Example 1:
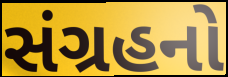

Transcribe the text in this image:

સંગ્રહનો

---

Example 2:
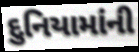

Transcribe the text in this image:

દુનિયામાંની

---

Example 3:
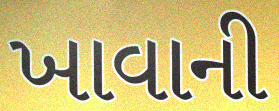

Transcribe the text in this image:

ખાવાની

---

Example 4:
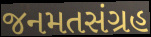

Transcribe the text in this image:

જનમતસંગ્રહ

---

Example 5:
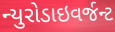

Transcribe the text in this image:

ન્યુરોડાઇવર્જન્ટ